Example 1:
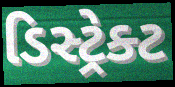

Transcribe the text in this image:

ડિસ્ટ્રેક્ટ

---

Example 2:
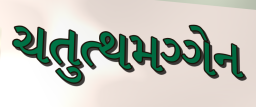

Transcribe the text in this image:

ચતુત્થમગ્ગેન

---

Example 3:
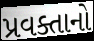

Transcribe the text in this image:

પ્રવક્તાનો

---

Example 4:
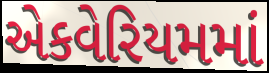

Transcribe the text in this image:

એકવેરિયમમાં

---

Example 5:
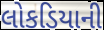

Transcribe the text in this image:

લોકડિયાની